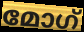
മോഗ്